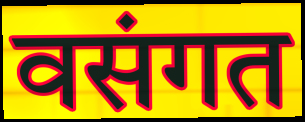
वसंगत